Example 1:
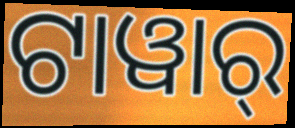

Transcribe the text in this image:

ଟାୱାର୍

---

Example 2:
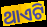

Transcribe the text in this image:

ଥାଏଟି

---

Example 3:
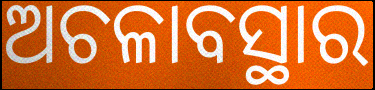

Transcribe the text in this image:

ଅଚଳାବସ୍ଥାର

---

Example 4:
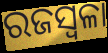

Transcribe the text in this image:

ରଜସ୍ବଳା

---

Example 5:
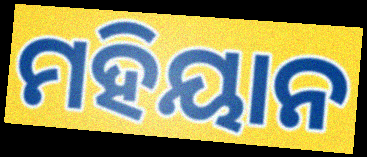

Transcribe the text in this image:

ମହିୟାନ